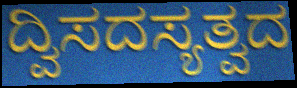
ದ್ವಿಸದಸ್ಯತ್ವದ